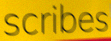
scribes